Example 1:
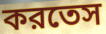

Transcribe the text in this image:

করতেস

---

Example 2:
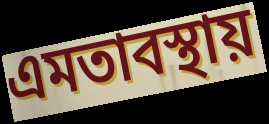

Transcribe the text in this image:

এমতাবস্থায়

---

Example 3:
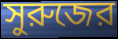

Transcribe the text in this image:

সুরুজের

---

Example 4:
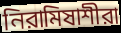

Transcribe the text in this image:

নিরামিষাশীরা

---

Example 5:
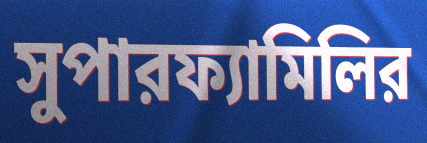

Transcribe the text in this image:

সুপারফ্যামিলির